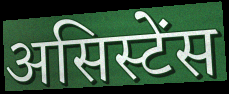
असिस्टेंस